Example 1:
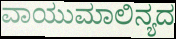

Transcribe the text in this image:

ವಾಯುಮಾಲಿನ್ಯದ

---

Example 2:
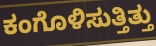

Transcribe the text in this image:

ಕಂಗೊಳಿಸುತ್ತಿತ್ತು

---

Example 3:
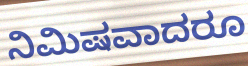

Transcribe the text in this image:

ನಿಮಿಷವಾದರೂ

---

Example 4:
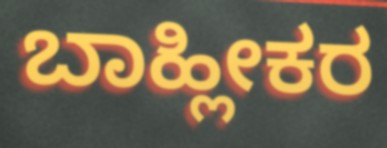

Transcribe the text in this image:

ಬಾಹ್ಲೀಕರ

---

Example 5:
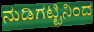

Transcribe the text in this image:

ನುಡಿಗಟ್ಟಿನಿಂದ